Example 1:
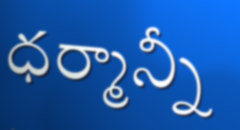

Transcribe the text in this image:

ధర్మాన్నీ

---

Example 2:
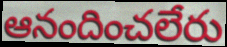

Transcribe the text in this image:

ఆనందించలేరు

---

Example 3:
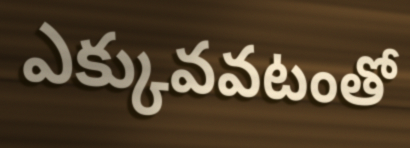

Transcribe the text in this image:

ఎక్కువవటంతో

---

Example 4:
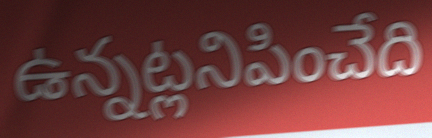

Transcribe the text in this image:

ఉన్నట్లనిపించేది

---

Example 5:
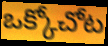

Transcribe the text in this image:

ఒక్కోచోట